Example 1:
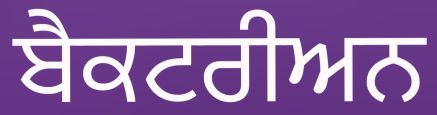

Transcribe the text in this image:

ਬੈਕਟਰੀਅਨ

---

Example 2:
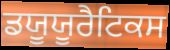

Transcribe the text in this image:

ਡਯੂਯੂਰੈਟਿਕਸ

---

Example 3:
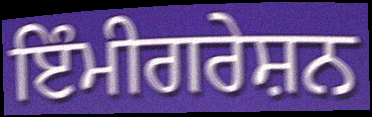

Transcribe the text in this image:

ਇੰਮੀਗਰੇਸ਼ਨ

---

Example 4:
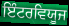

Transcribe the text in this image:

ਇੰਟਰਵਿਯੂਜ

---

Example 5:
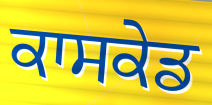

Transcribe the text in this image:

ਕਾਸਕੇਡ